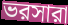
ভরসারা